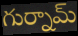
గుర్నామ్